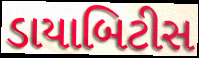
ડાયાબિટીસ